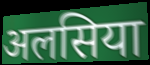
अलसिया